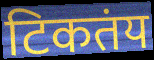
टिकतंय